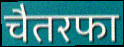
चैतरफा